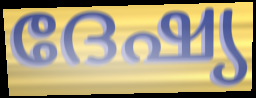
ദേഷ്യ